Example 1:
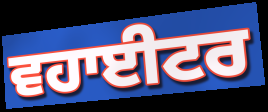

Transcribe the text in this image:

ਵਹਾਈਟਰ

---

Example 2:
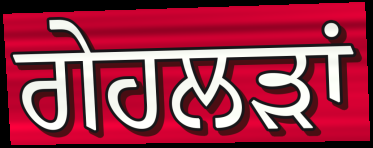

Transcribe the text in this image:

ਗੇਹਲੜਾਂ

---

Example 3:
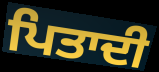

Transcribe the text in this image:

ਪਿਤਾਦੀ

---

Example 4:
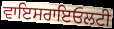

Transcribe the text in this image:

ਵਾਇਸਰਾਇਓਲਟੀ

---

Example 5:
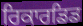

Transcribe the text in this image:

ਰਿਕਾਰਡਿਡ